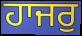
ਹਾਜਰੁ